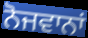
ਨੋਜਵਾਨਾਂ